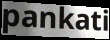
pankati